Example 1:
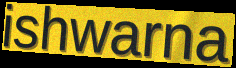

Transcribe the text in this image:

ishwarna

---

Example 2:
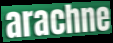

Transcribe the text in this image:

arachne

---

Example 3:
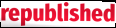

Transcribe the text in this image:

republished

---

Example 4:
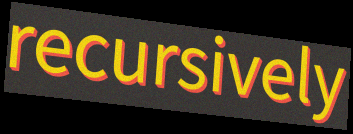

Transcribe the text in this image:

recursively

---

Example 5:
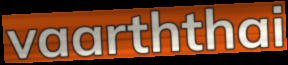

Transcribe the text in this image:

vaarththai